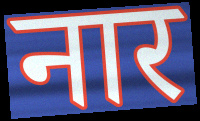
नार